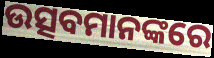
ଉତ୍ସବମାନଙ୍କରେ